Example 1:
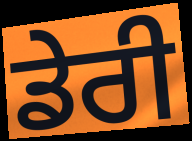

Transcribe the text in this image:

ਡੇਰੀ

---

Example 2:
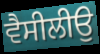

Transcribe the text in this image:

ਵੈਸੀਲੀਉ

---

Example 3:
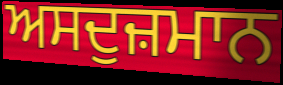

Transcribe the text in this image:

ਅਸਦੁਜ਼ਮਾਨ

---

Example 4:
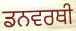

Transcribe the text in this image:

ਡਨਵਰਥੀ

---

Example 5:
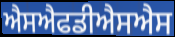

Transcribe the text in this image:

ਐਸਐਫਡੀਐਸਐਸ